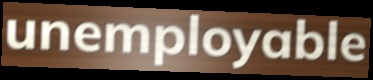
unemployable